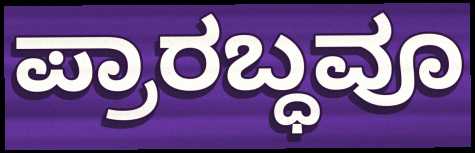
ಪ್ರಾರಬ್ಧವೂ